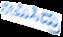
ನೇಮಿಸಿದ್ರು